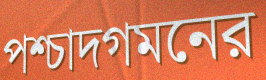
পশ্চাদগমনের